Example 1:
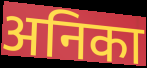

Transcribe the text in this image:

अनिका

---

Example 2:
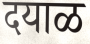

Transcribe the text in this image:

दयाळ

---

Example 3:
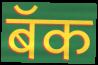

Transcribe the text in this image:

बॅक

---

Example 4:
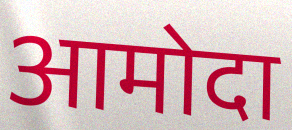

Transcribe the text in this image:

आमोदा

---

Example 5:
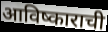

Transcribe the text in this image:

आविष्काराची